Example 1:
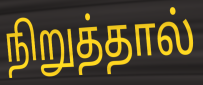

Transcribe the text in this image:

நிறுத்தால்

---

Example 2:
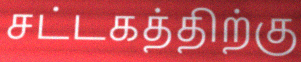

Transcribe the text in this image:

சட்டகத்திற்கு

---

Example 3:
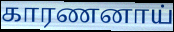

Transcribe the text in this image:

காரணனாய்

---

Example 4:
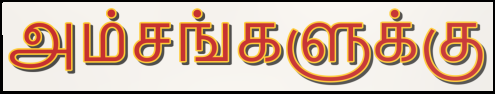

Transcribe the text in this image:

அம்சங்களுக்கு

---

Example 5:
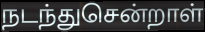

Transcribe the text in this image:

நடந்துசென்றாள்